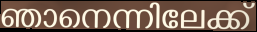
ഞാനെന്നിലേക്ക്